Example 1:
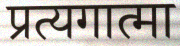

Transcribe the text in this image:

प्रत्यगात्मा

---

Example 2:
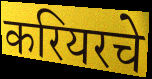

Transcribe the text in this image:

करियरचे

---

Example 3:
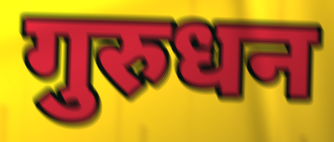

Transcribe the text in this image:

गुरुधन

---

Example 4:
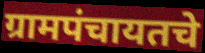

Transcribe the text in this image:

ग्रामपंचायतचे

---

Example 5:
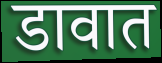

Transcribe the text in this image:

डावात